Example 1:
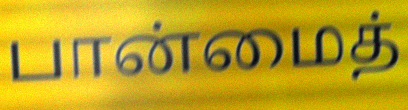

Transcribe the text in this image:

பான்மைத்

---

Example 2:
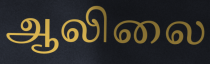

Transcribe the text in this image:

ஆலிலை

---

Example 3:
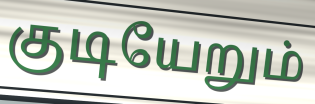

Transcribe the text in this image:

குடியேறும்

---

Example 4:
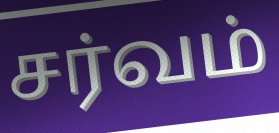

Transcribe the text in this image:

சர்வம்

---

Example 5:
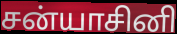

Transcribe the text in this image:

சன்யாசினி